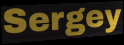
Sergey